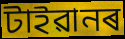
টাইৱানৰ